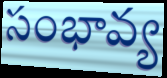
సంభావ్య